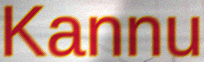
Kannu